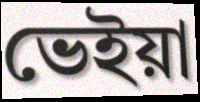
ভেইয়া